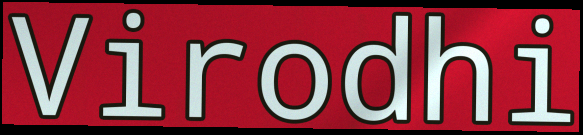
Virodhi